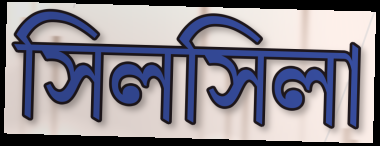
সিলসিলা